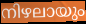
നിഴലായും